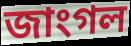
জাংগল